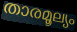
താരമൂല്യം